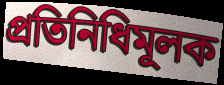
প্ৰতিনিধিমূলক